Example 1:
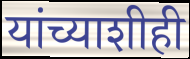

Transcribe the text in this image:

यांच्याशीही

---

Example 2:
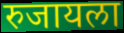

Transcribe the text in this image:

रुजायला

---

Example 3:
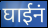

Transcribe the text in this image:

घाईनं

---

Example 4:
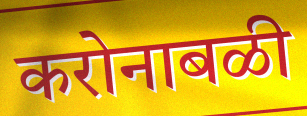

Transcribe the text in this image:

करोनाबळी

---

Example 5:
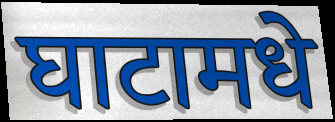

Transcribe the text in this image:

घाटामधे